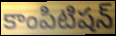
కాంపిటిషన్